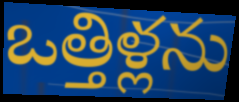
ఒత్తిళ్లను